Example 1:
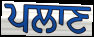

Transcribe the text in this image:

ਪਲਾਣ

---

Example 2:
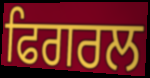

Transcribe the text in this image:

ਫਿਗਰਲ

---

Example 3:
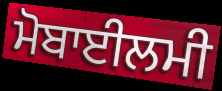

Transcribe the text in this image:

ਮੋਬਾਈਲਮੀ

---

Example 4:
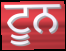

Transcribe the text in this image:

ਟੂਨ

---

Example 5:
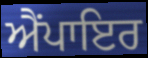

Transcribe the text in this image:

ਐੰਪਾਇਰ